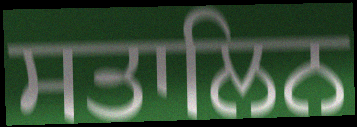
ਸਤਾਲਿਨ